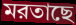
মরতাছে